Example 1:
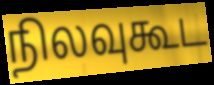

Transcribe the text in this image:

நிலவுகூட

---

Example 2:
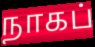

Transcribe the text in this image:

நாகப்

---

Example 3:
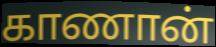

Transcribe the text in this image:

காணான்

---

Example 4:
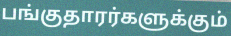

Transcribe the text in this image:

பங்குதாரர்களுக்கும்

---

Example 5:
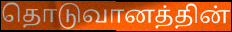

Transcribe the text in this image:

தொடுவானத்தின்